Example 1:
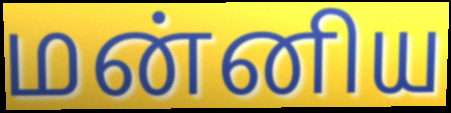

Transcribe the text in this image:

மன்னிய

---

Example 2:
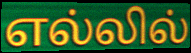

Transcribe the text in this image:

எல்லில்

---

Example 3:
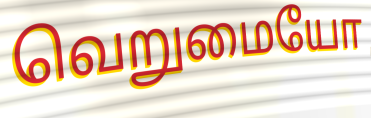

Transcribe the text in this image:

வெறுமையோ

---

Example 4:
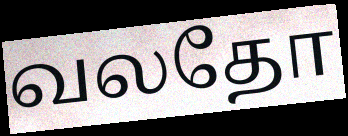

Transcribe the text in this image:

வலதோ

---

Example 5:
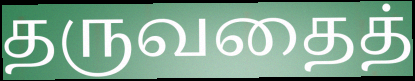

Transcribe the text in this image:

தருவதைத்